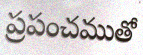
ప్రపంచముతో